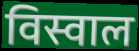
विस्वाल